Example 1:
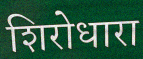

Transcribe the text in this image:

शिरोधारा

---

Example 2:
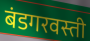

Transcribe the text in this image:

बंडगरवस्ती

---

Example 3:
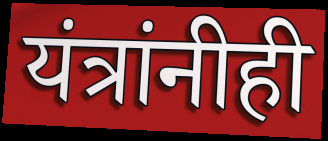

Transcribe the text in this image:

यंत्रांनीही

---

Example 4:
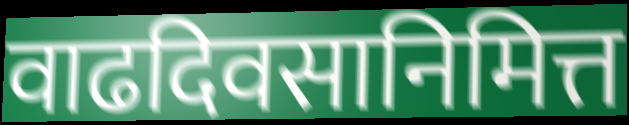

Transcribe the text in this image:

वाढदिवसानिमित्त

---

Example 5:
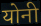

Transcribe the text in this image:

योनी